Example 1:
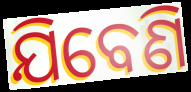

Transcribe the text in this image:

ଯିବେଣି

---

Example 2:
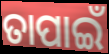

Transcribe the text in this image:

ତାପାଇଁ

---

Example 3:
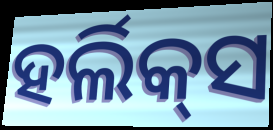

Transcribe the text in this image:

ହର୍ଲିକ୍‌ସ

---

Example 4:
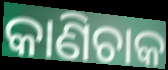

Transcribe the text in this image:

କାଣିଚାକ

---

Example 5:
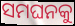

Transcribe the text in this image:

ସମଘନକୁ